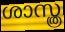
ശാസ്ത്ര